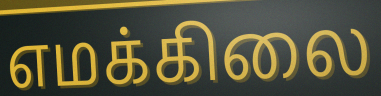
எமக்கிலை